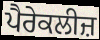
ਪੈਰੇਕਲੀਜ਼